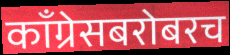
काँग्रेसबरोबरच